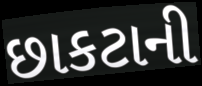
છાકટાની